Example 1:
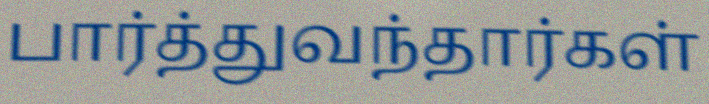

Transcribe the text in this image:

பார்த்துவந்தார்கள்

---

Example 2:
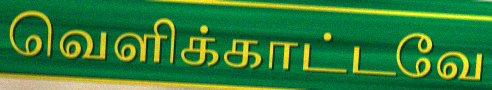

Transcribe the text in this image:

வெளிக்காட்டவே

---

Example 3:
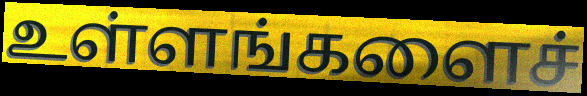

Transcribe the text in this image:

உள்ளங்களைச்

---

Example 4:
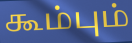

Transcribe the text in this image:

கூம்பும்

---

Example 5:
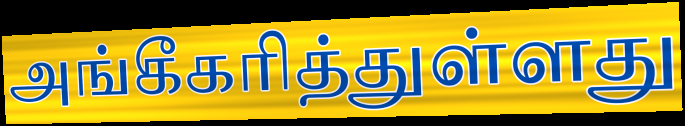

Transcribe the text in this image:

அங்கீகரித்துள்ளது